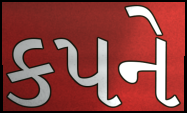
કપને